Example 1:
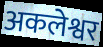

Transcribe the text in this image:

अकलेश्वर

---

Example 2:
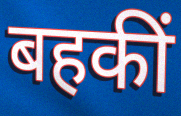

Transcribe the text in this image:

बहकीं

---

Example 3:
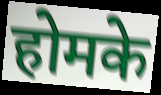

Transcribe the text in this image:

होमके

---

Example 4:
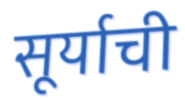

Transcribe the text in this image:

सूर्याची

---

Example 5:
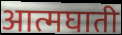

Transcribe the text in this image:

आत्मघाती